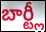
బార్ట్లీ